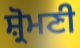
ਸ਼੍ਰੋਮਣੀ